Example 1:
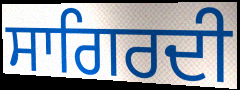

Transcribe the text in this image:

ਸਾਗਿਰਦੀ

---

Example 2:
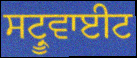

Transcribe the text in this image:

ਸਟ੍ਰੂਵਾਈਟ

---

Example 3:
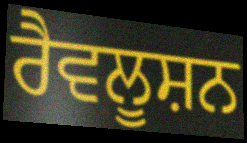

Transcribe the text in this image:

ਰੈਵਲੂਸ਼ਨ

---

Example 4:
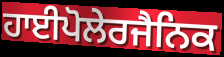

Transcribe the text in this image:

ਹਾਈਪੋਲੇਰਜੈਨਿਕ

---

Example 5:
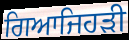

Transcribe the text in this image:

ਗਿਆਜਿਹੜੀ